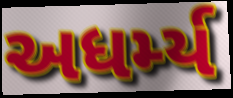
અધર્મ્ય